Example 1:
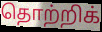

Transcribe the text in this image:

தொற்றிக்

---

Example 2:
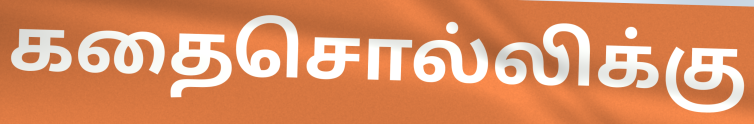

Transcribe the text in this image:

கதைசொல்லிக்கு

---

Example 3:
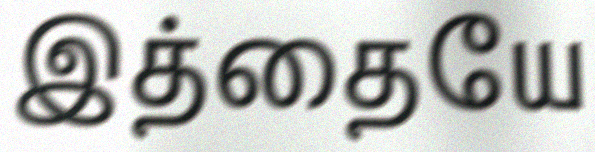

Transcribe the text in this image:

இத்தையே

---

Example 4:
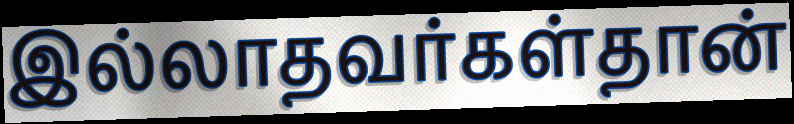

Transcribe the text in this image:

இல்லாதவர்கள்தான்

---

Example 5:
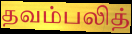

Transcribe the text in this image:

தவம்பலித்